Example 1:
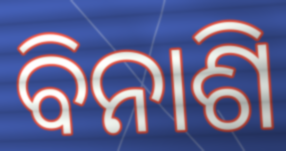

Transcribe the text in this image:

ବିନାଶି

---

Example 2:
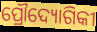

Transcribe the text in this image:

ପ୍ରୌଦ୍ୟୋଗିକୀ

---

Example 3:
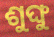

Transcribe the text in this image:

ଶୁଙ୍ଘୁ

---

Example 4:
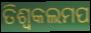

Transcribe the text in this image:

ତିଶ୍ୱକଲମପ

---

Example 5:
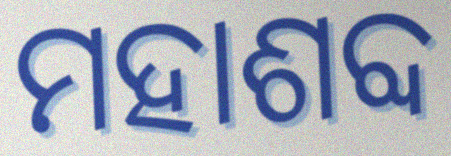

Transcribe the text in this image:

ମହାଶବ୍ଦ